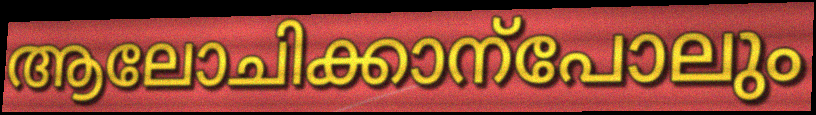
ആലോചിക്കാന്പോലും